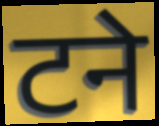
टने